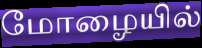
மோழையில்